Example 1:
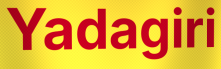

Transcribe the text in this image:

Yadagiri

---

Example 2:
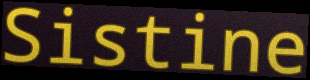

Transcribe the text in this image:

Sistine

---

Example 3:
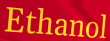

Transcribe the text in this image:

Ethanol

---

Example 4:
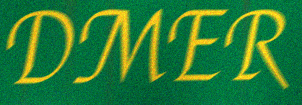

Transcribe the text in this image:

DMER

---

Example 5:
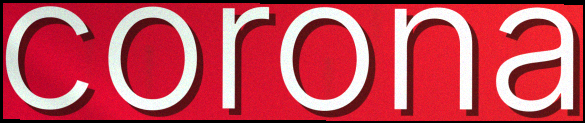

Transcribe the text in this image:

corona